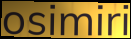
osimiri